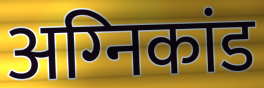
अग्‍निकांड